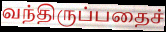
வந்திருப்பதைச்